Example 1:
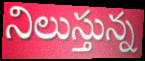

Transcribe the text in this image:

నిలుస్తున్న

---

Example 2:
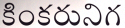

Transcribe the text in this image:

కింకరునిగ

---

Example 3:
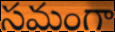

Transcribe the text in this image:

సమంగా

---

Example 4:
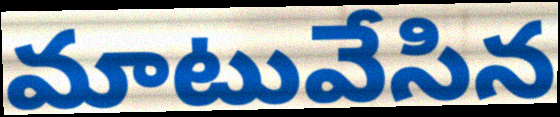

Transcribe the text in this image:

మాటువేసిన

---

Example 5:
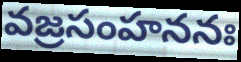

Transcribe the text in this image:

వజ్రసంహననః